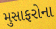
મુસાફરોના